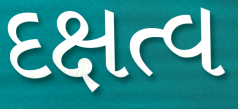
દક્ષત્વ